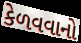
કેળવવાનો